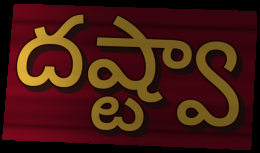
దష్ట్వా